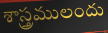
శాస్త్రములందు